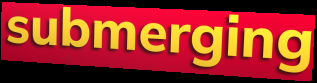
submerging